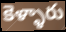
కెళ్ళారు